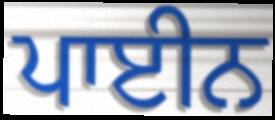
ਪਾਈਨ